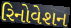
રિનોવેશન